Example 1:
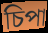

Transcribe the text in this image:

চিপা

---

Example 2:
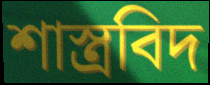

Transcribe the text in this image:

শাস্ত্ৰবিদ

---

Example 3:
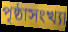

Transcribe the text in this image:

পৃষ্ঠাসংখ্যা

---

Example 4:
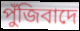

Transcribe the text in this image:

পুঁজিবাদে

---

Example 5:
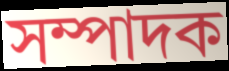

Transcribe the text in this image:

সম্পাদক